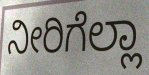
ನೀರಿಗೆಲ್ಲಾ